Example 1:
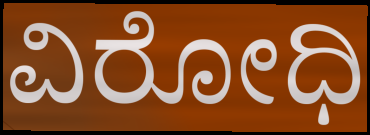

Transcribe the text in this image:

ವಿರೋಧಿ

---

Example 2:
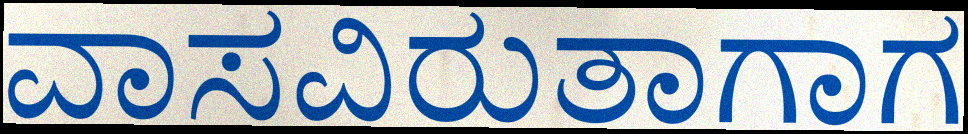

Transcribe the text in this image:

ವಾಸವಿರುತಾಗಾಗ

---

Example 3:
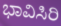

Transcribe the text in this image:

ಭಾವಿಸಿರಿ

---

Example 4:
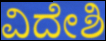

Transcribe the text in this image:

ವಿದೇಶಿ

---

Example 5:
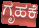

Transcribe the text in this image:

ಗೃಹಕೆ